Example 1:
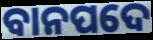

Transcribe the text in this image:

ବାନପଦେ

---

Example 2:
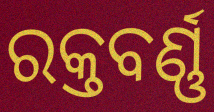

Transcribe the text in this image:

ରକ୍ତବର୍ଣ୍ଣ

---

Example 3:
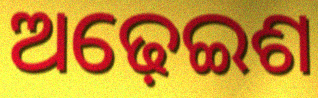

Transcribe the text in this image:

ଅଢ଼େଇଶ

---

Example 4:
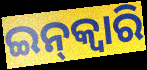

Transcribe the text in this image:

ଇନ୍‌କ୍ଵାରି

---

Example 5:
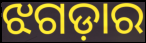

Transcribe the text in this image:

ଝଗଡ଼ାର